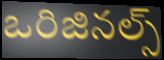
ఒరిజినల్స్